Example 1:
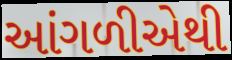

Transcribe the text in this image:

આંગળીએથી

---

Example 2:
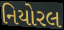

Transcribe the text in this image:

નિયોરલ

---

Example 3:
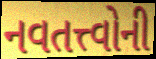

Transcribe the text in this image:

નવતત્ત્વોની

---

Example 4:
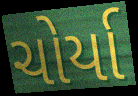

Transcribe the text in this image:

ચોર્યા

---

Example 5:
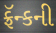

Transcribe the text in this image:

ફ્રૅન્કની